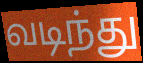
வடிந்து